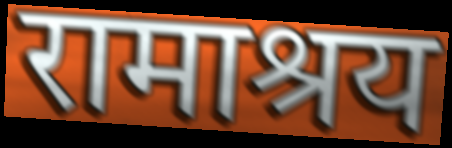
रामाश्रय